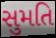
સુમતિ